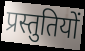
प्रस्तुतियों